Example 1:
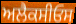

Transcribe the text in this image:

ਅਲੈਕਸੀਓਸ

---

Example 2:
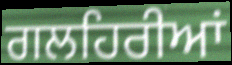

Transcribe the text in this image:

ਗਲਹਿਰੀਆਂ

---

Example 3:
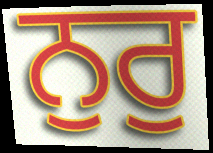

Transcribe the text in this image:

ਨੁਰੁ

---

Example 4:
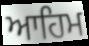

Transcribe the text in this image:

ਆਹਿਮ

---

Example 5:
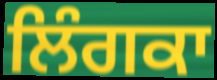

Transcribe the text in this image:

ਲਿੰਗਕਾ